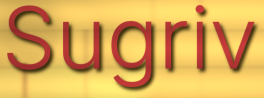
Sugriv